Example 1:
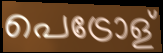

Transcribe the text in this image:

പെട്രോള്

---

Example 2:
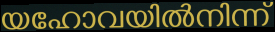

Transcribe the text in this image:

യഹോവയിൽനിന്ന്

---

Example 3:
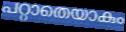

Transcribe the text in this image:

പറ്റാതെയാകും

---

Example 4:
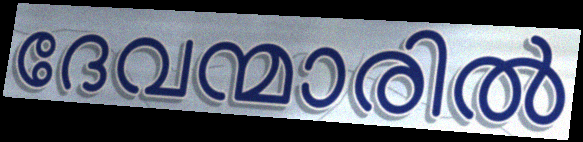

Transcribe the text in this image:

ദേവന്മാരിൽ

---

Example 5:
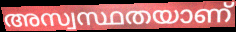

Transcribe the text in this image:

അസ്വസ്ഥതയാണ്